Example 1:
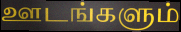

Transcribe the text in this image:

ஊடங்களும்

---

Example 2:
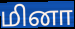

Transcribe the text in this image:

மினா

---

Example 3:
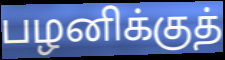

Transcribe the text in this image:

பழனிக்குத்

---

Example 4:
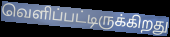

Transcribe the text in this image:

வெளிப்பட்டிருக்கிறது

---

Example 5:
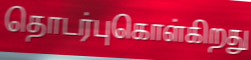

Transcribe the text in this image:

தொடர்புகொள்கிறது